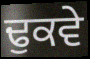
ਢੁਕਵੇ